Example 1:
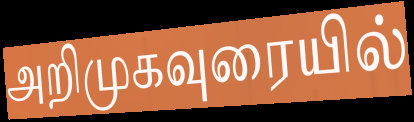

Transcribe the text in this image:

அறிமுகவுரையில்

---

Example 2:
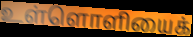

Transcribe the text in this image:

உள்ளொளியைக்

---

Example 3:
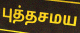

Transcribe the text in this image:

புத்தசமய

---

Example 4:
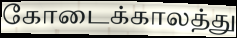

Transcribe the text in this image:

கோடைக்காலத்து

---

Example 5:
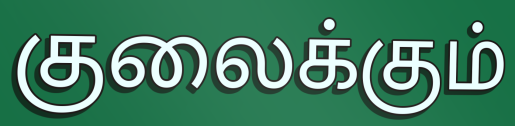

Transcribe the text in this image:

குலைக்கும்